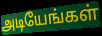
அடியேங்கள்